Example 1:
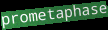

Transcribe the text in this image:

prometaphase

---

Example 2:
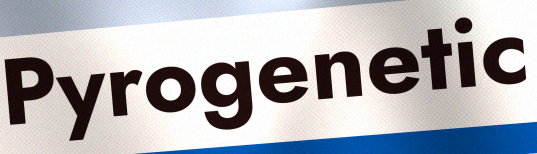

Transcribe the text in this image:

Pyrogenetic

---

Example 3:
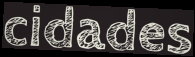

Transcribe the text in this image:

cidades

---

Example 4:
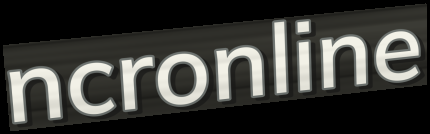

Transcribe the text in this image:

ncronline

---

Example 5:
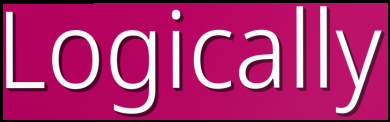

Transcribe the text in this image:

Logically